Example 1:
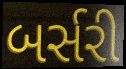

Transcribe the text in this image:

બર્સરી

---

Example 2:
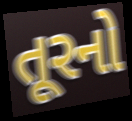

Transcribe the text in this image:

તૂરનો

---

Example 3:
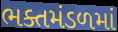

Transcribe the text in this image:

ભક્તમંડળમાં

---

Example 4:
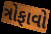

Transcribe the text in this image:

ત્રોફાવો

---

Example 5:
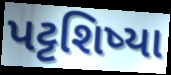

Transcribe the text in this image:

પટ્ટશિષ્યા